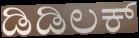
ಡಿಡಿಲಕ್